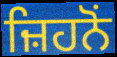
ਜ਼ਿਹਨੋਂ